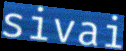
sivai